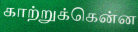
காற்றுக்கென்ன